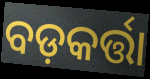
ବଡ଼କର୍ତ୍ତା